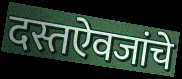
दस्तऐवजांचे